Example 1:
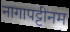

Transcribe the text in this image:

नागापट्टीनम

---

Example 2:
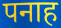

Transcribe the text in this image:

पनाह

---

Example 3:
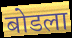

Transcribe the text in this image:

बोडला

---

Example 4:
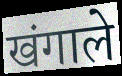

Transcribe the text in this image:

खंगाले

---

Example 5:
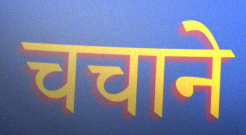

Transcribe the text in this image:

चचाने